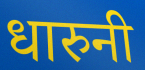
धारुनी